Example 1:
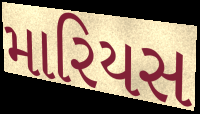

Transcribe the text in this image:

મારિયસ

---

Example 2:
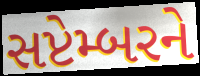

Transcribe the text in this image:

સપ્ટેમ્બરને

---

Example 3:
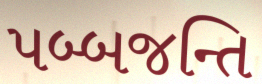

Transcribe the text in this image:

પબ્બજન્તિ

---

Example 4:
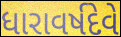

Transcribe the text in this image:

ધારાવર્ષદેવે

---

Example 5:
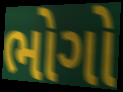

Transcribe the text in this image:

ભોગો